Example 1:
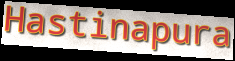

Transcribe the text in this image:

Hastinapura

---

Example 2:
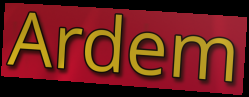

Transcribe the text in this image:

Ardem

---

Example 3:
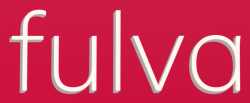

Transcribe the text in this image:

fulva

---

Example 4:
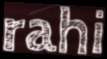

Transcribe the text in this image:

rahi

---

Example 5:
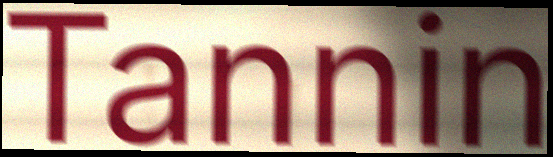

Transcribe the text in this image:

Tannin